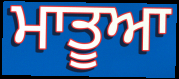
ਮਾਤੂਆ